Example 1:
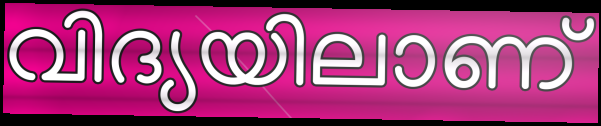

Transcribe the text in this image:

വിദ്യയിലാണ്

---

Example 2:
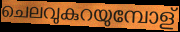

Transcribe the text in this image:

ചെലവുകുറയുമ്പോള്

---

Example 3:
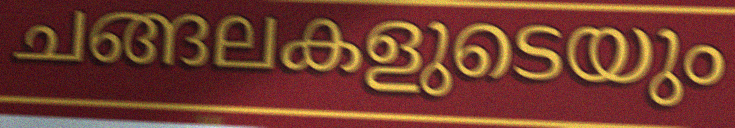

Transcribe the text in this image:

ചങ്ങലകളുടെയും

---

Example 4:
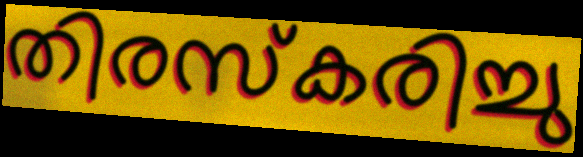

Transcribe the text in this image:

തിരസ്കരിച്ചു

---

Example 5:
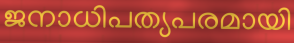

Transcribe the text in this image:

ജനാധിപത്യപരമായി